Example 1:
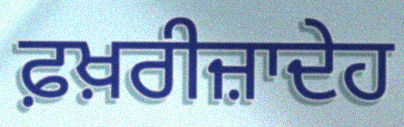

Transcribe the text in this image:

ਫ਼ਖ਼ਰੀਜ਼ਾਦੇਹ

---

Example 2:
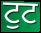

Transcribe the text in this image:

ਟੁਟ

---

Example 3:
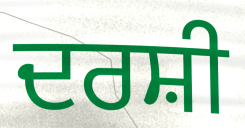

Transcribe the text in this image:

ਦਰਸ਼ੀ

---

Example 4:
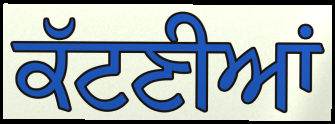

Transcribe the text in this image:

ਕੱਟਣੀਆਂ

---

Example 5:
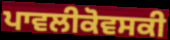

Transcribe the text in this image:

ਪਾਵਲੀਕੋਵਸਕੀ